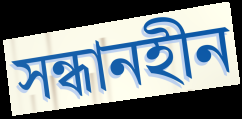
সন্ধানহীন